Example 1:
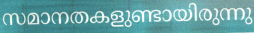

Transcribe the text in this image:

സമാനതകളുണ്ടായിരുന്നു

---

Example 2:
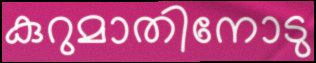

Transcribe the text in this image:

കുറുമാതിനോടു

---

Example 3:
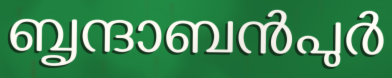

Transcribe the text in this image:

ബൃന്ദാബൻപുർ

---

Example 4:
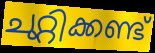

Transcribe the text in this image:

ചുറ്റിക്കണ്ട്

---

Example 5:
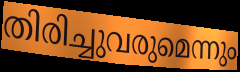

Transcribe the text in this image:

തിരിച്ചുവരുമെന്നും